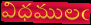
విధములఁ